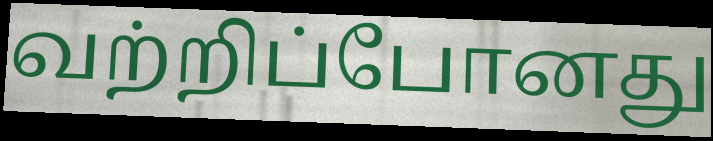
வற்றிப்போனது